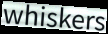
whiskers